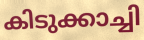
കിടുക്കാച്ചി